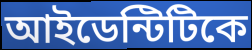
আইডেন্টিটিকে